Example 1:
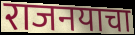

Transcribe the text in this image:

राजनयाचा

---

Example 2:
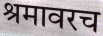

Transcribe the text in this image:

श्रमावरच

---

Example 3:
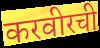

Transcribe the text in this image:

करवीरची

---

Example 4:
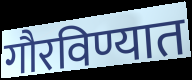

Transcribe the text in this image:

गौरविण्यात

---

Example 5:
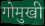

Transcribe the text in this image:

गोमुखी